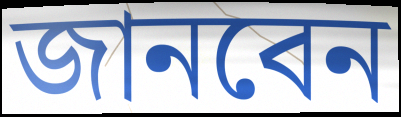
জানবেন